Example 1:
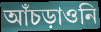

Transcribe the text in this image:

আঁচড়াওনি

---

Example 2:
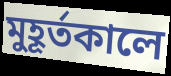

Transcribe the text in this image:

মুহূর্তকালে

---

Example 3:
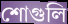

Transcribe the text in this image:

শোগুলি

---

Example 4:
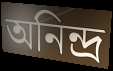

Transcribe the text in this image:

অনিন্দ্র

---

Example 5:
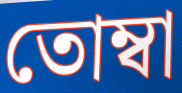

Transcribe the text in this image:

তোম্বা